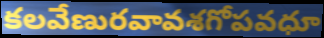
కలవేణురవావశగోపవధూ